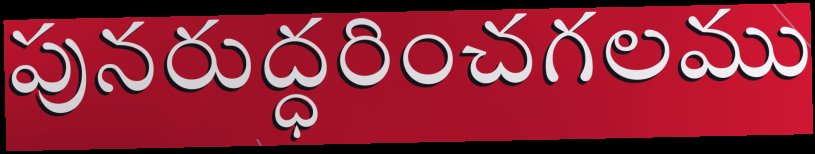
పునరుద్ధరించగలము